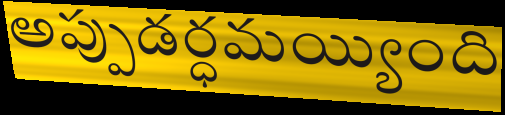
అప్పుడర్ధమయ్యింది